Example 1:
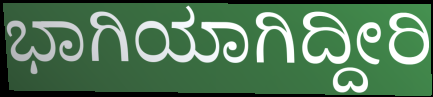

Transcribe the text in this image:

ಭಾಗಿಯಾಗಿದ್ದೀರಿ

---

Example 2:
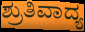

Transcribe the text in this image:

ಶ್ರುತಿವಾದ್ಯ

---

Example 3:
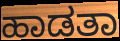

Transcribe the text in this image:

ಹಾಡತಾ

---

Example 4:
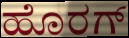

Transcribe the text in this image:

ಹೊರಗ್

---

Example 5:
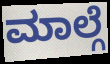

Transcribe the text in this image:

ಮಾಲ್ಗೆ